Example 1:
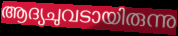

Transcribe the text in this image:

ആദ്യചുവടായിരുന്നു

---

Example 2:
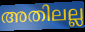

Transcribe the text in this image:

അതിലല്ല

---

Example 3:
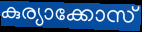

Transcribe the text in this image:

കുര്യാക്കോസ്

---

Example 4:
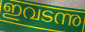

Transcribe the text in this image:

ഇവടന്നു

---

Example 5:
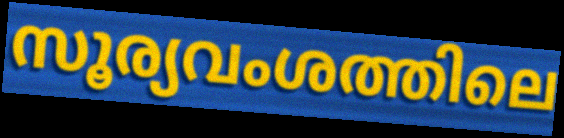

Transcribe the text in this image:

സൂര്യവംശത്തിലെ